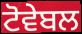
ਟੋਵੇਬਲ